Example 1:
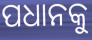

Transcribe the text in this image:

ପଧାନକୁ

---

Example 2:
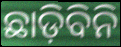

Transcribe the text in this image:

ଛାଡ଼ିବିନି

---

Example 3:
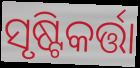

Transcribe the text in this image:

ସୃଷ୍ଟିକର୍ତ୍ତା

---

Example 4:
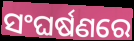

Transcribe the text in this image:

ସଂଘର୍ଷଣରେ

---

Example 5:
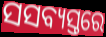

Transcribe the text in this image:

ସସବ୍ୟସ୍ତରେ